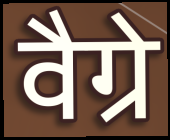
वैग्रे